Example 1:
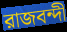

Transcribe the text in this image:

রাজবন্দী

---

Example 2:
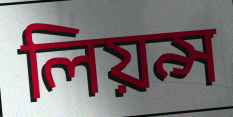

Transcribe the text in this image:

লিয়ন্স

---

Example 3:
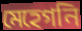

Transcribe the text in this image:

মেহেগনি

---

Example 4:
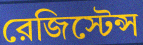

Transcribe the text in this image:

রেজিস্টেন্স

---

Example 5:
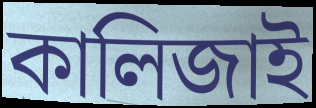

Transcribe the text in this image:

কালিজাই